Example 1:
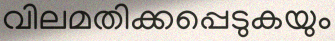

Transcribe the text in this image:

വിലമതിക്കപ്പെടുകയും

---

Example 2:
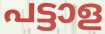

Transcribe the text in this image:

പട്ടാള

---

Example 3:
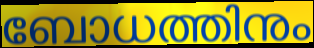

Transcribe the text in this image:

ബോധത്തിനും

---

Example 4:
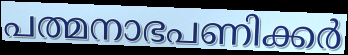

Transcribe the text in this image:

പത്മനാഭപണിക്കർ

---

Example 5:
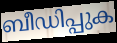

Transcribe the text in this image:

ബീഡിപ്പുക